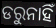
ଡରୁନାହିଁ